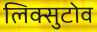
लिक्सुटोव